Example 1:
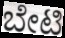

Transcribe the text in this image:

ಬೇಟಿ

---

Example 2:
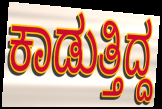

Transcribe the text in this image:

ಕಾಡುತ್ತಿದ್ದ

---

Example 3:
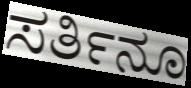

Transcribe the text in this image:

ಸರ್ತಿನೂ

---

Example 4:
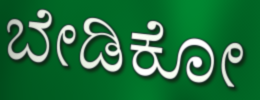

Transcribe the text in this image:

ಬೇಡಿಕೋ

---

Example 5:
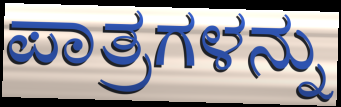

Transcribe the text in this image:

ಪಾತ್ರಗಳನ್ನು